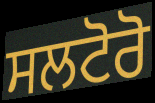
ਸਲਟੋਰੋ